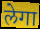
लेगा